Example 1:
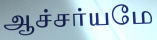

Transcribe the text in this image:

ஆச்சர்யமே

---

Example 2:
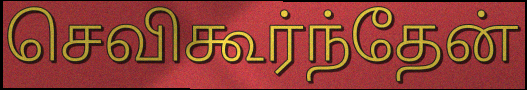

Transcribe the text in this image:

செவிகூர்ந்தேன்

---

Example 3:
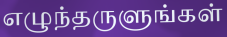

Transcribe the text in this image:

எழுந்தருளுங்கள்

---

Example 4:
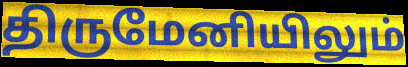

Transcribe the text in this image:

திருமேனியிலும்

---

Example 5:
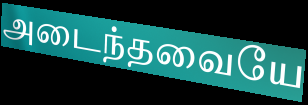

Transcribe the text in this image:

அடைந்தவையே